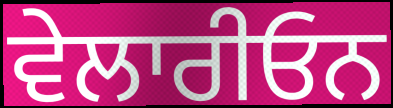
ਵੇਲਾਰੀਓਨ